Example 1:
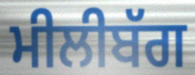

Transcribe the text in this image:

ਮੀਲੀਬੱਗ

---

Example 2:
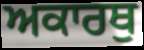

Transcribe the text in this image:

ਅਕਾਰਥੁ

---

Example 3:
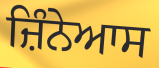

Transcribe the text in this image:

ਜ਼ਿੰਨੇਆਸ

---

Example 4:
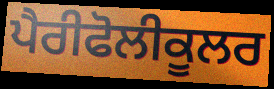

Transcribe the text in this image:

ਪੈਰੀਫੋਲੀਕੂਲਰ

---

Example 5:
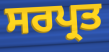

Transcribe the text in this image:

ਸਰਪ੍ਰਤ